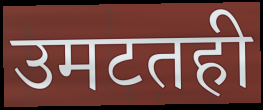
उमटतही